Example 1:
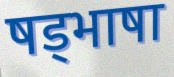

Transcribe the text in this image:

षड्भाषा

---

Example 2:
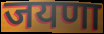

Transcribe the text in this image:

जयणा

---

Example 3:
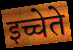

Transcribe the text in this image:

इच्चेते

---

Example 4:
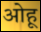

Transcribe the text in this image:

ओहू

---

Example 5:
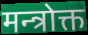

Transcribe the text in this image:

मन्त्रोक्त